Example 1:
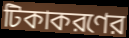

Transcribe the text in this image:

টিকাকরণের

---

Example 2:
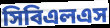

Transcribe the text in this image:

সিবিএলএস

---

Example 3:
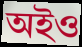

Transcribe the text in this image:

অইও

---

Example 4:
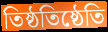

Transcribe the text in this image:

তিষ্ঠতিষ্ঠেতি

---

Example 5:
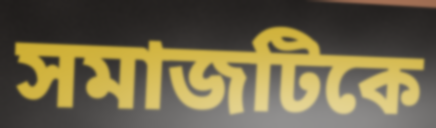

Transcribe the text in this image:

সমাজটিকে